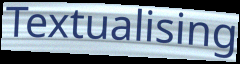
Textualising